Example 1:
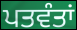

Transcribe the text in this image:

ਪਤਵੰਤਾਂ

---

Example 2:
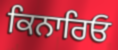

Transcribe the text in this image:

ਕਿਨਾਰਿਓ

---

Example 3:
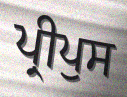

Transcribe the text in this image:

ਪ੍ਰੀਪੁਸ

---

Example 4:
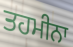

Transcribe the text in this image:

ਤਹਮੀਨਾ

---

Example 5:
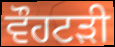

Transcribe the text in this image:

ਵੌਹਟੜੀ